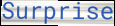
Surprise